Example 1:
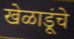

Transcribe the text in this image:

खेळाडूंचे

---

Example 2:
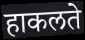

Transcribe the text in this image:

हाकलते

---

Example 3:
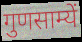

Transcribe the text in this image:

गुणसाम्यें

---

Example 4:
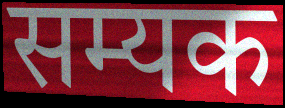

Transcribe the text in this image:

सम्‍यक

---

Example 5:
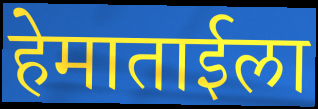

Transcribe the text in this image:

हेमाताईला